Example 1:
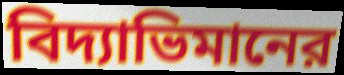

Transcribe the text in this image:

বিদ্যাভিমানের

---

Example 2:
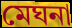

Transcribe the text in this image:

মেঘনা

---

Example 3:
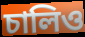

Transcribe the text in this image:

চালিও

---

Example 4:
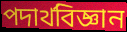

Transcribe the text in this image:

পদার্থবিজ্ঞান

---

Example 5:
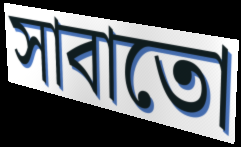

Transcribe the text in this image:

সাবাতো